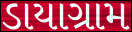
ડાયાગ્રામ